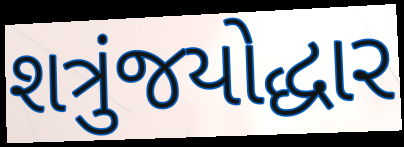
શત્રુંજયોદ્ધાર